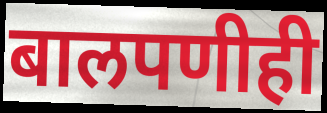
बालपणीही